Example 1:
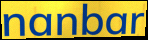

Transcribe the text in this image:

nanbar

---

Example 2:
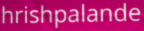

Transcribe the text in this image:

hrishpalande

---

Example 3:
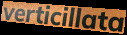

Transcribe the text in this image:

verticillata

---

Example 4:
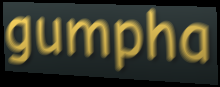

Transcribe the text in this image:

gumpha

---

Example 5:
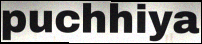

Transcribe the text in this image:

puchhiya